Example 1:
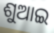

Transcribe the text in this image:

ଶୁଆଇ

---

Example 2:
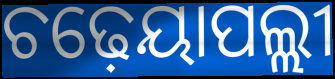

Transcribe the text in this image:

ଚଢ଼େୟାପଲ୍ଲୀ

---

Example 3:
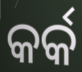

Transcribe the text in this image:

କର୍କ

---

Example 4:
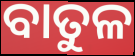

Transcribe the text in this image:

ବାତୁଳ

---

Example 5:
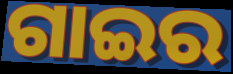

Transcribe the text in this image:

ଗାଇର